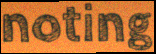
noting